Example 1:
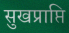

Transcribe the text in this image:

सुखप्राप्ति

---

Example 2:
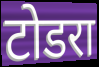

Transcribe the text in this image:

टोडरा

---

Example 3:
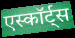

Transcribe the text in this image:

एस्कॉर्ट्स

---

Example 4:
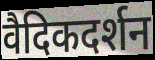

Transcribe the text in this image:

वैदिकदर्शन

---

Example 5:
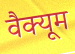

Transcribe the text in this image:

वैक्यूम